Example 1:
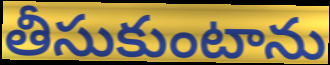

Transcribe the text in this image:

తీసుకుంటాను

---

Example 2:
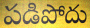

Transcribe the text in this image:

పడిపోదు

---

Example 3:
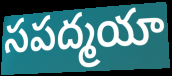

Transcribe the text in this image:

సపద్మయా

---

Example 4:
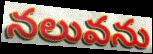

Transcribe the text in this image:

నలువను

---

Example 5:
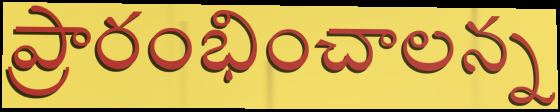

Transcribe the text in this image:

ప్రారంభించాలన్న